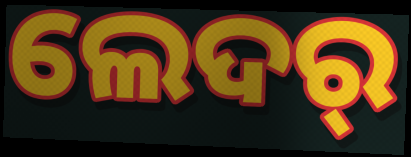
ଲେଦର୍